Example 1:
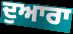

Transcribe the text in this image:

ਦੁਆਰਾ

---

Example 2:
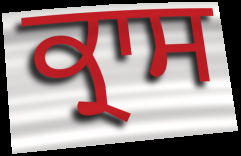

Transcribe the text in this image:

ਕ੍ਰਾਸ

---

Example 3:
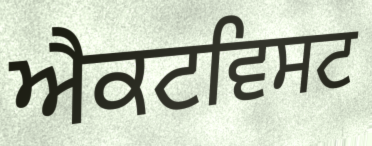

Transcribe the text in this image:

ਐਕਟਵਿਸਟ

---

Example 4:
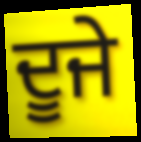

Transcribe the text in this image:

ਦੂਜੇ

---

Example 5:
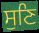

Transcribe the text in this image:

ਸੁਣਿ